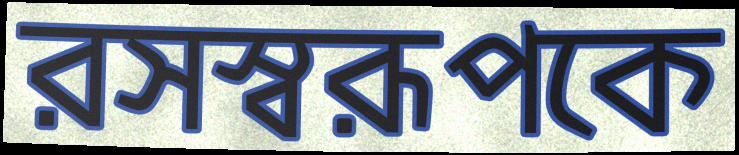
রসস্বরূপকে